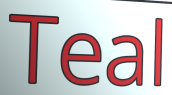
Teal